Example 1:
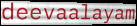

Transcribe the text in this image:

deevaalayam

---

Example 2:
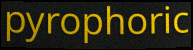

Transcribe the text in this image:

pyrophoric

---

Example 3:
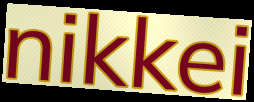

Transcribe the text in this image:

nikkei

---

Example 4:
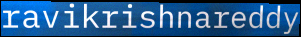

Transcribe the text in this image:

ravikrishnareddy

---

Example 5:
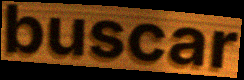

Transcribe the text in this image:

buscar